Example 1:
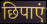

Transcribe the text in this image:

छिपाएं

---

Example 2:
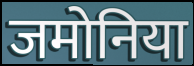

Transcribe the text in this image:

जमोनिया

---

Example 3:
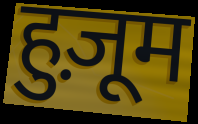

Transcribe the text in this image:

हुज़ूम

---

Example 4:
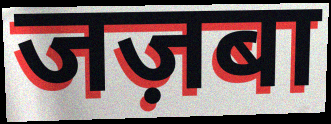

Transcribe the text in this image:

जज़बा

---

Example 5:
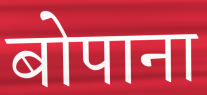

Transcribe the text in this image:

बोपाना